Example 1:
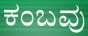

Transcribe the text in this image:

ಕಂಬವು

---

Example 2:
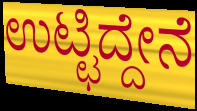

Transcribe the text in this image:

ಉಟ್ಟಿದ್ದೇನೆ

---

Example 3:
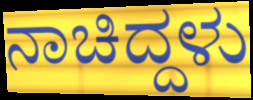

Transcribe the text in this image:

ನಾಚಿದ್ದಳು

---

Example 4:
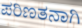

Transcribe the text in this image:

ಪರಿಣತನಾಗಿ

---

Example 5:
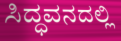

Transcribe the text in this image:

ಸಿದ್ಧವನದಲ್ಲಿ